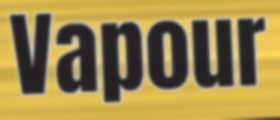
Vapour